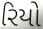
રિયો